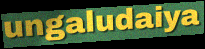
ungaludaiya